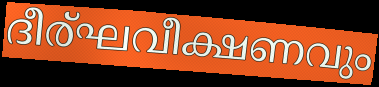
ദീര്ഘവീക്ഷണവും